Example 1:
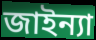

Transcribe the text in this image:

জাইন্যা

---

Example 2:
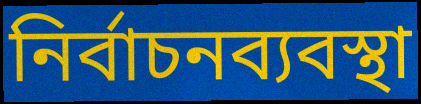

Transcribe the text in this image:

নির্বাচনব্যবস্থা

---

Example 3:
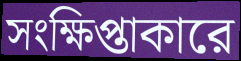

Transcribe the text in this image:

সংক্ষিপ্তাকারে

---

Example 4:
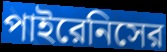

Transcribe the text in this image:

পাইরেনিসের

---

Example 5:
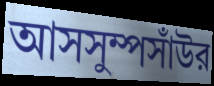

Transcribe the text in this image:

আসসুম্পসাঁউর